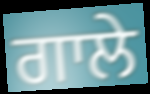
ਗਾਲੇ